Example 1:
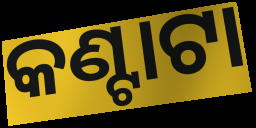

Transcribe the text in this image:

କଣ୍ଟାଟା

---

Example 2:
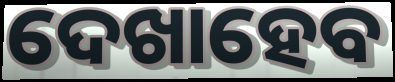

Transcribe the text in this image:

ଦେଖାହେବ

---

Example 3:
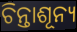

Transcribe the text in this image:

ଚିନ୍ତାଶୂନ୍ୟ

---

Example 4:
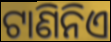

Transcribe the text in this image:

ଟାଣିନିଏ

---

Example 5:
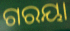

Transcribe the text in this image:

ଗରୟା